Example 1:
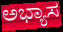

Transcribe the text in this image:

ಅಭ್ಯಾಸ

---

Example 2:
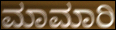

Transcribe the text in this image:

ಮಾಮಾರಿ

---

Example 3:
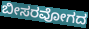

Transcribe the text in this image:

ಬೀಸರವೋಗದ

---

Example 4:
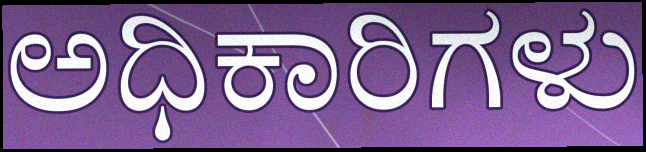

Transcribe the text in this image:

ಅಧಿಕಾರಿಗಳು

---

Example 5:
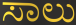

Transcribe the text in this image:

ಸಾಲು